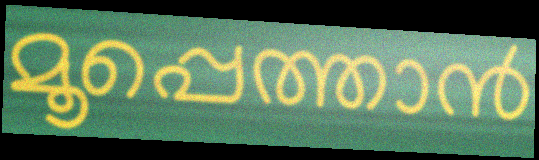
മൂപ്പെത്താൻ